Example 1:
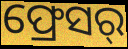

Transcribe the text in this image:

ଫ୍ରେସର୍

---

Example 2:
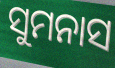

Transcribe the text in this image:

ସୁମନାସ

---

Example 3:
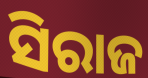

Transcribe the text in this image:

ସିରାଜ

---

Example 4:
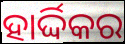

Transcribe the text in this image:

ହାର୍ଦ୍ଦିକର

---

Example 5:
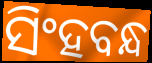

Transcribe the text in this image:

ସିଂହବନ୍ଧ